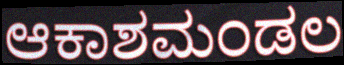
ಆಕಾಶಮಂಡಲ